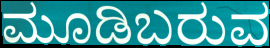
ಮೂಡಿಬರುವ